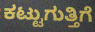
ಕಟ್ಟುಗುತ್ತಿಗೆ